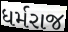
ધર્મરાજ